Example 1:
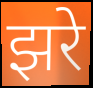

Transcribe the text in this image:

झरे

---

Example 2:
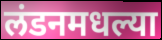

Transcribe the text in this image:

लंडनमधल्या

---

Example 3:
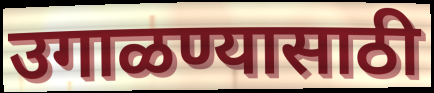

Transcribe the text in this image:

उगाळण्यासाठी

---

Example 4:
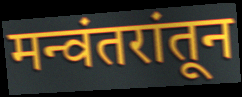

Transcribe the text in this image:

मन्वंतरांतून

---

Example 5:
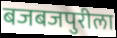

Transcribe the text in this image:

बजबजपुरीला